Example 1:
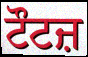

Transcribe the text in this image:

ਟੌਟਜ਼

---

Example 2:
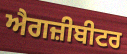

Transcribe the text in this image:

ਐਗਜ਼ੀਬੀਟਰ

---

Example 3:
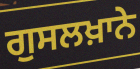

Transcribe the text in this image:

ਗੁਸਲਖ਼ਾਨੇ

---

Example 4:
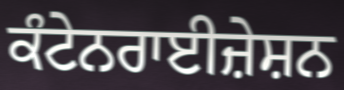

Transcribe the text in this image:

ਕੰਟੇਨਰਾਈਜ਼ੇਸ਼ਨ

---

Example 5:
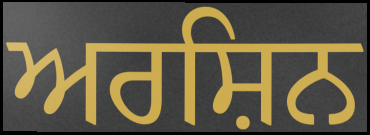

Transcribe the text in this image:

ਅਰਸ਼ਿਨ